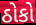
ઠોકો